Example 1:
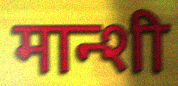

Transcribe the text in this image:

मान्शी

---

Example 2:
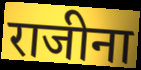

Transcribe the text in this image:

राजीना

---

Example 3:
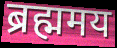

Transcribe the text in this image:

ब्रह्ममय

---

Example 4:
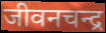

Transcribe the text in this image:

जीवनचन्द्र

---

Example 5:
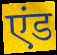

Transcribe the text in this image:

एंड